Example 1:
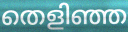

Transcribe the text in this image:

തെളിഞ്ഞ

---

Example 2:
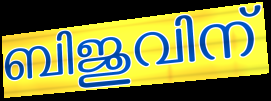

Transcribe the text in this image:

ബിജുവിന്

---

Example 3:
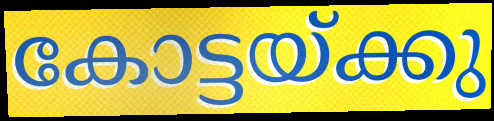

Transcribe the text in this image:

കോട്ടയ്ക്കു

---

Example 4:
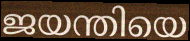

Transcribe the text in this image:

ജയന്തിയെ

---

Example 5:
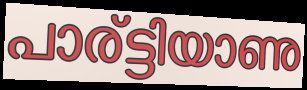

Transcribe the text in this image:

പാര്ട്ടിയാണു